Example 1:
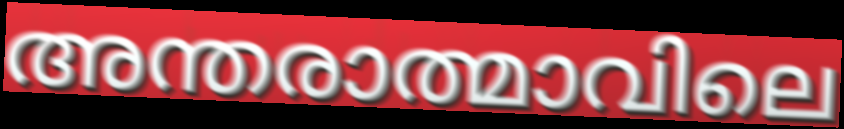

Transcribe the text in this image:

അന്തരാത്മാവിലെ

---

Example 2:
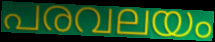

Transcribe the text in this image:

പരവലയം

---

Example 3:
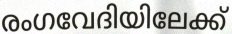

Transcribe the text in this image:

രംഗവേദിയിലേക്ക്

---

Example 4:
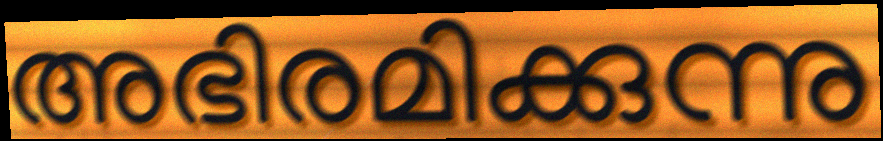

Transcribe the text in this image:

അഭിരമിക്കുന്നു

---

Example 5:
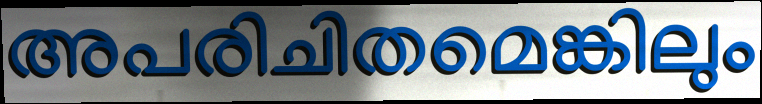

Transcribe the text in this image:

അപരിചിതമെങ്കിലും